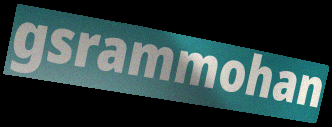
gsrammohan